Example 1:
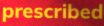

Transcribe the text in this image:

prescribed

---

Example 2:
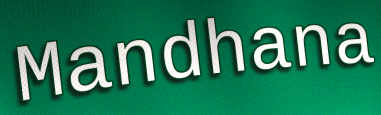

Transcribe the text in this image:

Mandhana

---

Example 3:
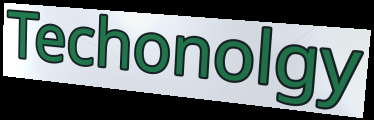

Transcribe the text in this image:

Techonolgy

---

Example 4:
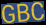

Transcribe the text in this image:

GBC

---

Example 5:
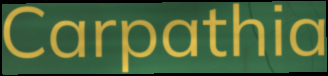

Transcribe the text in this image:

Carpathia